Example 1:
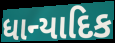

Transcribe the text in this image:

ધાન્યાદિક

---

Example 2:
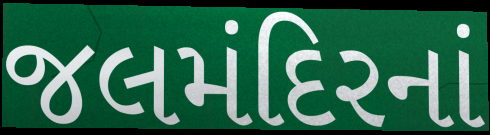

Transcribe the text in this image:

જલમંદિરનાં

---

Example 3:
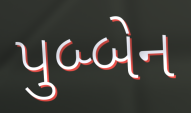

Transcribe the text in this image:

પુબ્બેન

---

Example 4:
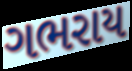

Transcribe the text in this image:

ગભરાય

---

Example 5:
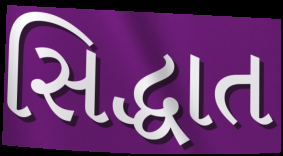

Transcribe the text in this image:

સિદ્ધાત